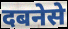
दबनेसे